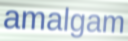
amalgam